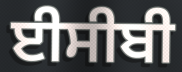
ਈਸੀਬੀ